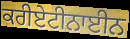
ਕਰੀਏਟੀਨਾਈਨ